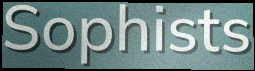
Sophists